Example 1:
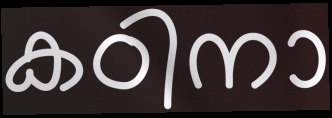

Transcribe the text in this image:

കഠിനാ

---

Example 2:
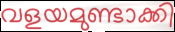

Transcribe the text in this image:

വളയമുണ്ടാക്കി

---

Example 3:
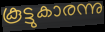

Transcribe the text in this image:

കൂട്ടുകാരന്നു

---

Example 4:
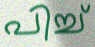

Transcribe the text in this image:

പിച്ച്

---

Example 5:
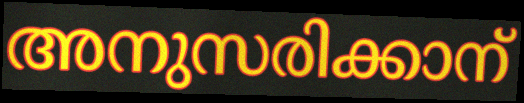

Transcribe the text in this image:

അനുസരിക്കാന്